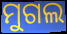
ମୁଗଲ